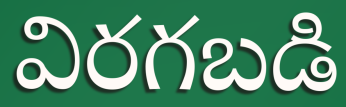
విరగబడి